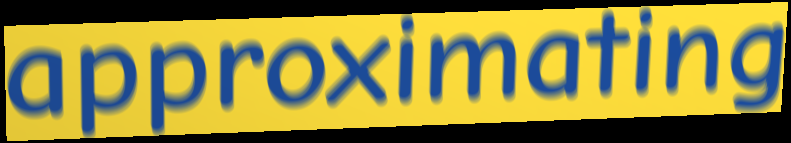
approximating